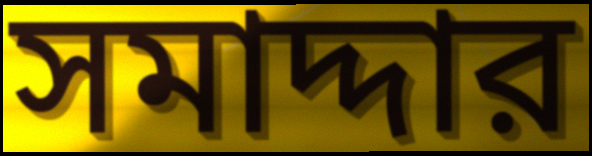
সমাদ্দার